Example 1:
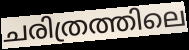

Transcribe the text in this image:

ചരിത്രത്തിലെ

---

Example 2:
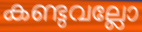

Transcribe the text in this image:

കണ്ടുവല്ലോ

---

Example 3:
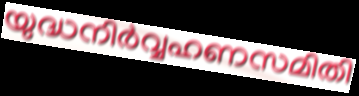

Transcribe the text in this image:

യുദ്ധനിർവ്വഹണസമിതി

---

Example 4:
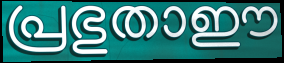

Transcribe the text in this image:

പ്രഭുതാഈ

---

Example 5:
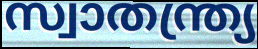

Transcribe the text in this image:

സ്വാതന്ത്ര്യ